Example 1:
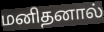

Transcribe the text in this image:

மனிதனால்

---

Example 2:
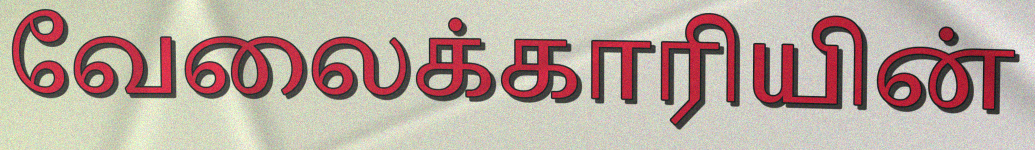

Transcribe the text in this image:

வேலைக்காரியின்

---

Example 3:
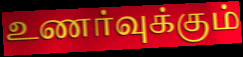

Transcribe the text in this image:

உணர்வுக்கும்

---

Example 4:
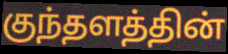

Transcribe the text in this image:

குந்தளத்தின்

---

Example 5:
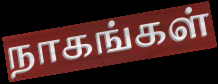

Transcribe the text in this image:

நாகங்கள்